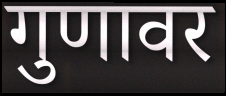
गुणावर